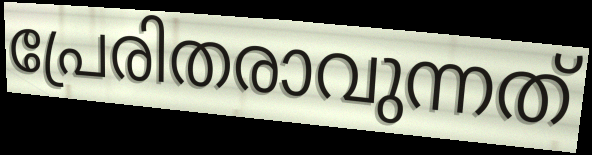
പ്രേരിതരാവുന്നത്